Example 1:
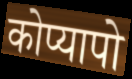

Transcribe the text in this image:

कोप्यापो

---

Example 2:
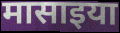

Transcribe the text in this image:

मासाइया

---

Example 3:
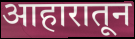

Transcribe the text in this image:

आहारातून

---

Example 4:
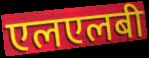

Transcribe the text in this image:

एलएलबी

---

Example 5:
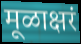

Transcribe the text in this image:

मूळाक्षरं